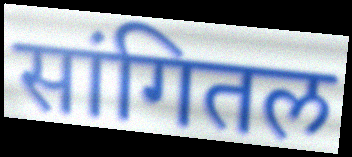
सांगितल